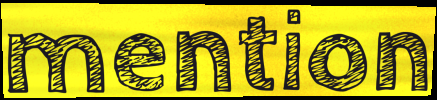
mention